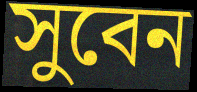
সুবেন